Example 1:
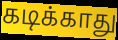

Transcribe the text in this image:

கடிக்காது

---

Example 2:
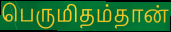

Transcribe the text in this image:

பெருமிதம்தான்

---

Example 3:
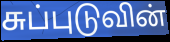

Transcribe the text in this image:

சுப்புடுவின்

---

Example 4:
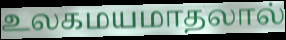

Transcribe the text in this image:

உலகமயமாதலால்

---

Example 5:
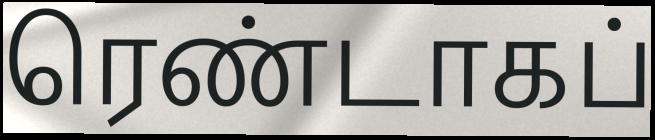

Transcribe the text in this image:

ரெண்டாகப்